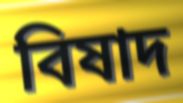
বিষাদ